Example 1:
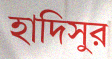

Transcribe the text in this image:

হাদিসুর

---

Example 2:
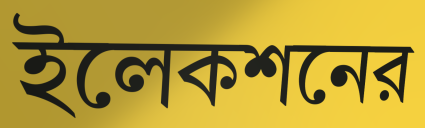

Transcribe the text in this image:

ইলেকশনের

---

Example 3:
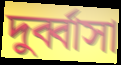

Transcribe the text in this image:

দুর্ব্বাসা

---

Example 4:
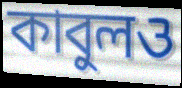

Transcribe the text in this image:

কাবুলও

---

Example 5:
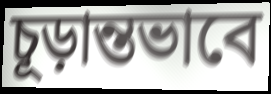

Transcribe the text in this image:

চূড়ান্তভাবে